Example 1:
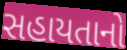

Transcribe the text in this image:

સહાયતાનો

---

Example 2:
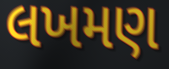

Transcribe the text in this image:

લખમણ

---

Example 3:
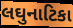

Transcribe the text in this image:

લઘુનાટિકા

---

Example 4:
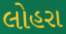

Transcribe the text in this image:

લોહરા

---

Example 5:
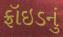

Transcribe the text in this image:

ફ્રૉઇડનું